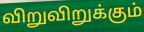
விறுவிறுக்கும்